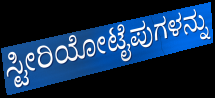
ಸ್ಟೀರಿಯೋಟೈಪುಗಳನ್ನು